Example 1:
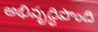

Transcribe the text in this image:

అభివృద్ధిపొంది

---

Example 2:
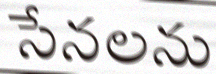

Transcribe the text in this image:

సేనలను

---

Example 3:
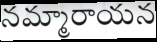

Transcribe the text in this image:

నమ్మారాయన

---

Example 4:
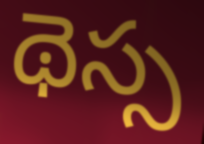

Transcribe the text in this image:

థెస్స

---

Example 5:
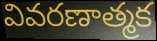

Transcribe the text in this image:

వివరణాత్మక